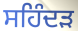
ਸਹਿੰਦੜ